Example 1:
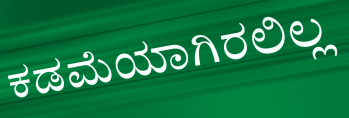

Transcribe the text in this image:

ಕಡಮೆಯಾಗಿರಲಿಲ್ಲ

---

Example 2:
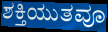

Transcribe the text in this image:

ಶಕ್ತಿಯುತವೂ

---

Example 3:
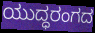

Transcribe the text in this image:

ಯುದ್ಧರಂಗದ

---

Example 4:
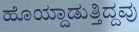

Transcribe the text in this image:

ಹೊಯ್ದಾಡುತ್ತಿದ್ದವು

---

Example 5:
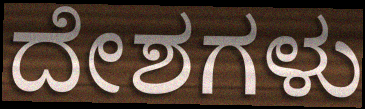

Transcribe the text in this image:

ದೇಶಗಳು